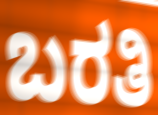
ಬರತಿ